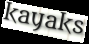
kayaks